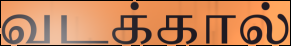
வடக்கால்